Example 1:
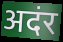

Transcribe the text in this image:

अदंर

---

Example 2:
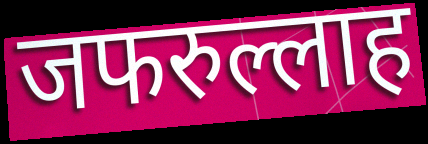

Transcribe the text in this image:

जफरुल्लाह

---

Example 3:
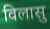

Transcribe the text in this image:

विलासु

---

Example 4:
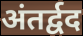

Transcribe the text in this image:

अंतर्द्वद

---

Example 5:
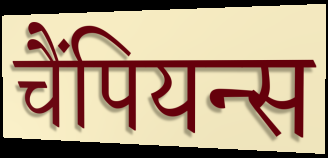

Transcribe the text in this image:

चैंपियन्स